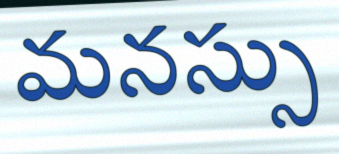
మనస్సు